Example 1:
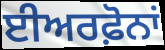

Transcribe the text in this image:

ਈਅਰਫ਼ੋਨਾਂ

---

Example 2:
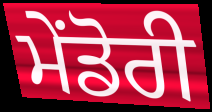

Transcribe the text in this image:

ਮੇਂਡੋਰੀ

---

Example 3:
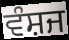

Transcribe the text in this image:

ਵੰਸ਼ਜ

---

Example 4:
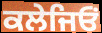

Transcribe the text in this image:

ਕਲੇਜਿਓਂ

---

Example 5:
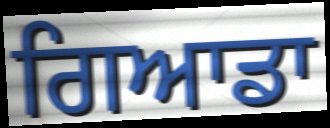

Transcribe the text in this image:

ਗਿਆਡਾ